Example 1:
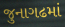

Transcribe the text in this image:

જુનાગઢમાં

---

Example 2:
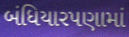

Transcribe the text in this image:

બંધિયારપણામાં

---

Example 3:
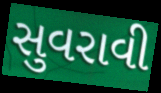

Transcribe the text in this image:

સુવરાવી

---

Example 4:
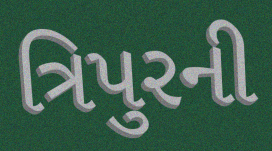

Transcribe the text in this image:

ત્રિપુરની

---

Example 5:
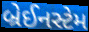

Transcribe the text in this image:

બ્રેઈનસ્ટેમ